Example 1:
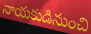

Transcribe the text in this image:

నాయకుడినుంచి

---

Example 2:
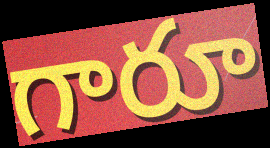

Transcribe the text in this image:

గారూ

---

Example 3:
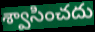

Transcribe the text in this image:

శ్వాసించదు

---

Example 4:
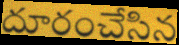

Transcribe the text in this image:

దూరంచేసిన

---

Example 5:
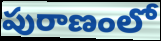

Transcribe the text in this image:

పురాణంలో